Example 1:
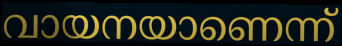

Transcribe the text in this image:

വായനയാണെന്ന്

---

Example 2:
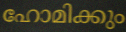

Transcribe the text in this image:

ഹോമിക്കും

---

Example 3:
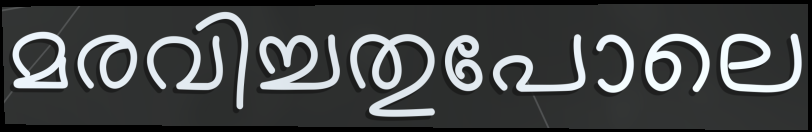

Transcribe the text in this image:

മരവിച്ചതുപോലെ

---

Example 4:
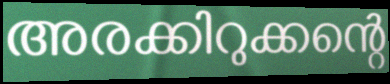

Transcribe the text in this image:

അരക്കിറുക്കന്റെ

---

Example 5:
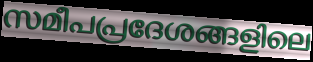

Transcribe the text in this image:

സമീപപ്രദേശങ്ങളിലെ